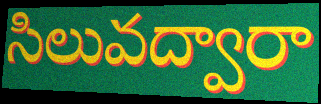
సిలువద్వారా